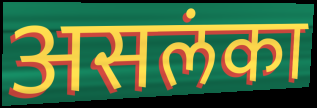
असलंका